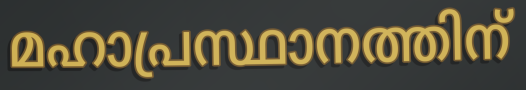
മഹാപ്രസ്ഥാനത്തിന്